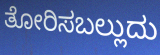
ತೋರಿಸಬಲ್ಲುದು